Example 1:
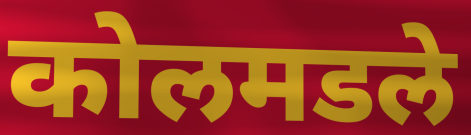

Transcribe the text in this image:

कोलमडले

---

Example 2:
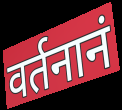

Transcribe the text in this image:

वर्तनानं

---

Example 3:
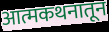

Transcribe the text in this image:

आत्मकथनातून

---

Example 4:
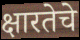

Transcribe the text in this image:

क्षारतेचे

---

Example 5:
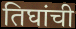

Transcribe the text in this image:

तिघांची